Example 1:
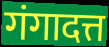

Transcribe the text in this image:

गंगादत्त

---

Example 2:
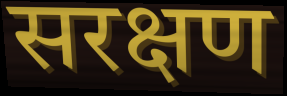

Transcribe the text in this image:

सरक्षण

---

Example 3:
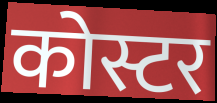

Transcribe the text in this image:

कोस्टर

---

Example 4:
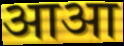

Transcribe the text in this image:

आआ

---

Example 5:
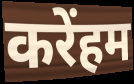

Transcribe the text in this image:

करेंहम